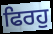
ਫਿਰਹੁ